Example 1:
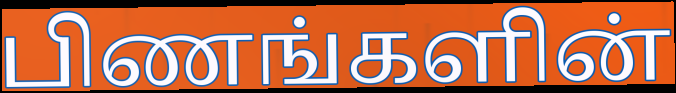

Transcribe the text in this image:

பிணங்களின்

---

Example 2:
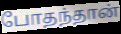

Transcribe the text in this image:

போதந்தான்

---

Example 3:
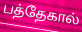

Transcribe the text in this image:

பத்தேகால்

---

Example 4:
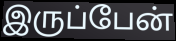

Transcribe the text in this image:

இருப்பேன்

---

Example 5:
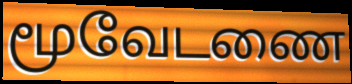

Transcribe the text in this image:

மூவேடணை